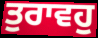
ਤੁਰਾਵਹੁ